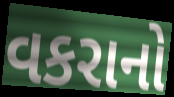
વકરાનો